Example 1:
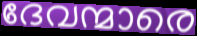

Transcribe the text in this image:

ദേവന്മാരെ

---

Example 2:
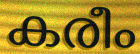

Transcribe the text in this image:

കരീം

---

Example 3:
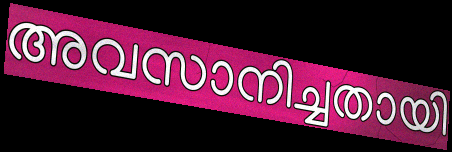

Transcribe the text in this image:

അവസാനിച്ചതായി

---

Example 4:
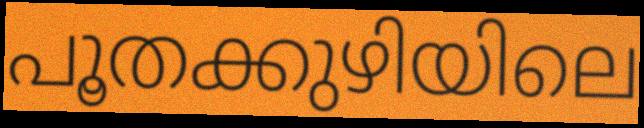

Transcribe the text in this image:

പൂതക്കുഴിയിലെ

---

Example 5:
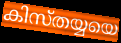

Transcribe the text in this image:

കിസ്തയ്യയെ